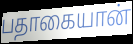
பதாகையான்